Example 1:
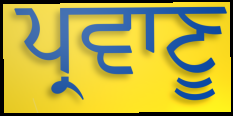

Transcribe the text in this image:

ਪ੍ਰਵਾਣੂ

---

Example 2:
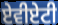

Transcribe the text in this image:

ਏਵੀਏਟੀ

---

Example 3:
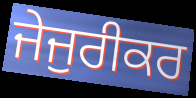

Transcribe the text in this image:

ਜੇਜੁਰੀਕਰ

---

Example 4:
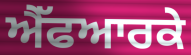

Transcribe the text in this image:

ਐੱਫਆਰਕੇ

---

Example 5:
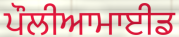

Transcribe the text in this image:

ਪੌਲੀਆਮਾਈਡ